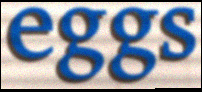
eggs